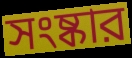
সংষ্কার